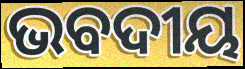
ଭବଦୀୟ